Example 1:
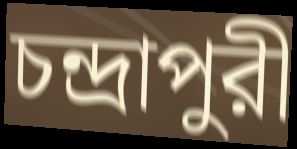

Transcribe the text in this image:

চন্দ্রাপুরী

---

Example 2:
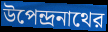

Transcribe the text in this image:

উপেন্দ্রনাথের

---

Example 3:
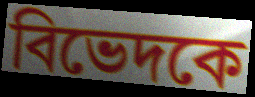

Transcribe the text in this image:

বিভেদকে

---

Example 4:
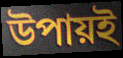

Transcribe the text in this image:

উপায়ই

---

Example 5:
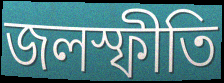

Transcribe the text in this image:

জলস্ফীতি